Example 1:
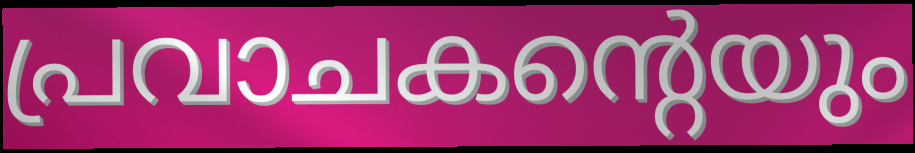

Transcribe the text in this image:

പ്രവാചകന്റെയും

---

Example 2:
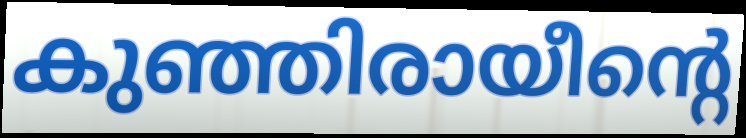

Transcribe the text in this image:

കുഞ്ഞിരായീന്റെ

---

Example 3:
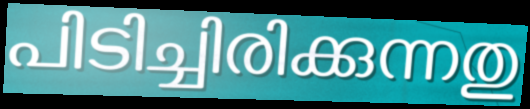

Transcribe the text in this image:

പിടിച്ചിരിക്കുന്നതു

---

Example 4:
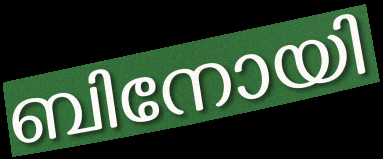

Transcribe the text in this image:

ബിനോയി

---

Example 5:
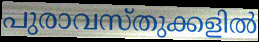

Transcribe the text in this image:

പുരാവസ്തുക്കളിൽ